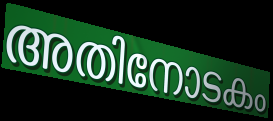
അതിനോടകം